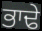
ਭਾਢੇ